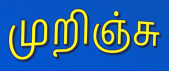
முறிஞ்சு